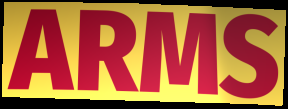
ARMS